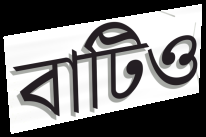
বাটিও